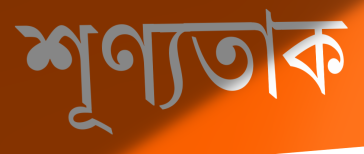
শূণ্যতাক